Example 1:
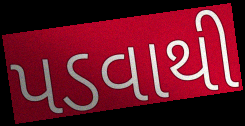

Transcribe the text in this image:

પડવાથી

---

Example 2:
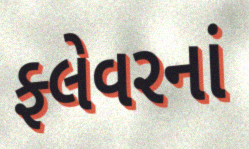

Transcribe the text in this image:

ફ્લેવરનાં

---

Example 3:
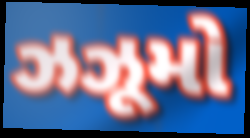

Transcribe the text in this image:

ઝઝૂમો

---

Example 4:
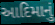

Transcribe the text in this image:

આદિમાનું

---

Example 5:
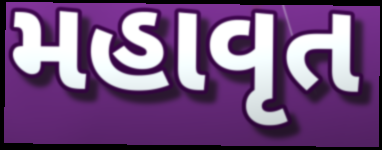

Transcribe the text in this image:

મહાવૃત